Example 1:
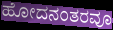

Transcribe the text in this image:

ಹೋದನಂತರವೂ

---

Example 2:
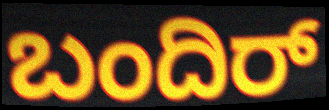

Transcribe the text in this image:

ಬಂದಿರ್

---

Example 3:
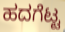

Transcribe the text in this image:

ಹದಗೆಟ್ಟ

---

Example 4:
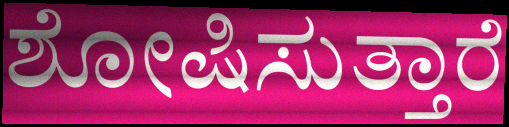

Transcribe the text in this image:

ಶೋಷಿಸುತ್ತಾರೆ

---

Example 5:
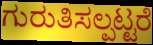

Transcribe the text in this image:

ಗುರುತಿಸಲ್ಪಟ್ಟರೆ